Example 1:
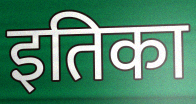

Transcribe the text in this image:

इतिका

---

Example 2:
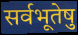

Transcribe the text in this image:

सर्वभूतेषु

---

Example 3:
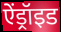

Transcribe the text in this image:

ऐंड्रॉइड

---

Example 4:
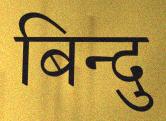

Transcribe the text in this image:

बिन्दु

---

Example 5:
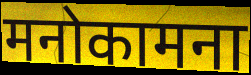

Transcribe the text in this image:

मनोकामना